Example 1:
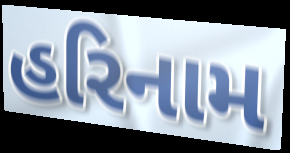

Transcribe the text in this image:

હરિનામ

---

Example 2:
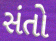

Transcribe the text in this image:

સંતો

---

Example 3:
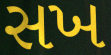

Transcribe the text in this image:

સખ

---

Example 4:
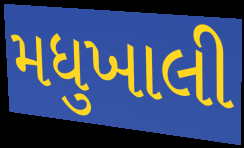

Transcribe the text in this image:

મધુખાલી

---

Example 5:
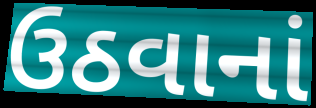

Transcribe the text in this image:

ઉઠવાનાં